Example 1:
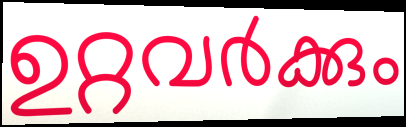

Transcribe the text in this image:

ഉറ്റവർക്കും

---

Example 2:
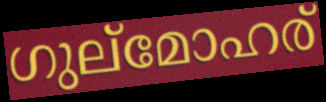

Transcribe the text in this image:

ഗുല്മോഹര്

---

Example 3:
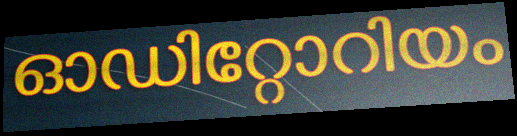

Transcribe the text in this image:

ഓഡിറ്റോറിയം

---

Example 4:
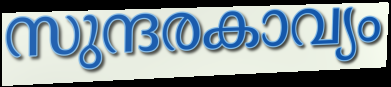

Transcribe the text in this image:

സുന്ദരകാവ്യം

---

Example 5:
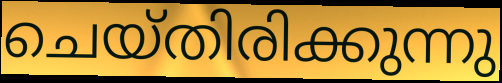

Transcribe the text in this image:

ചെയ്തിരിക്കുന്നു